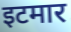
इटमार